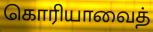
கொரியாவைத்